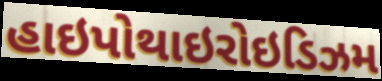
હાઇપોથાઇરોઇડિઝમ